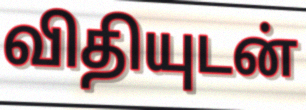
விதியுடன்